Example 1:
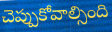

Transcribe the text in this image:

చెప్పుకోవాల్సింది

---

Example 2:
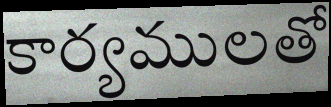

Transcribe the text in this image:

కార్యములతో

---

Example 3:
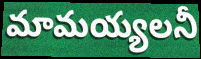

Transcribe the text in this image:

మామయ్యలనీ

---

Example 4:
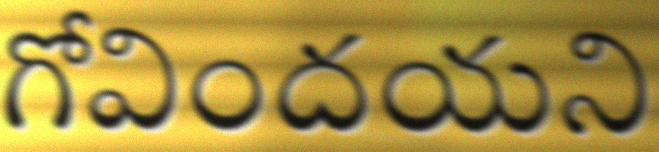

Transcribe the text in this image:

గోవిందయని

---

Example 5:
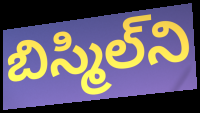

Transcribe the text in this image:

బిస్మిల్‌ని